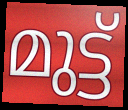
മുട്ട്